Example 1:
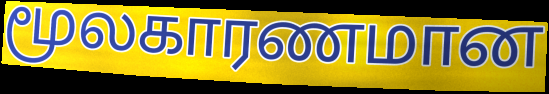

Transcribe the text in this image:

மூலகாரணமான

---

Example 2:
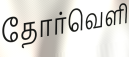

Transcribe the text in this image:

தோர்வெளி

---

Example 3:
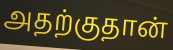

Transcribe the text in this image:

அதற்குதான்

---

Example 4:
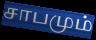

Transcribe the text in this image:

சாபமும்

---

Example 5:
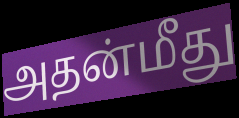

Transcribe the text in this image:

அதன்மீது